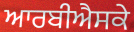
ਆਰਬੀਐਸਕੇ